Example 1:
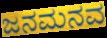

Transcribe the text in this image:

ಜನಮನವ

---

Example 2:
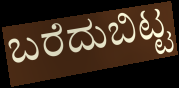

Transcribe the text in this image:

ಬರೆದುಬಿಟ್ಟ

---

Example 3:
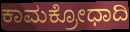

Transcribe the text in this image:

ಕಾಮಕ್ರೋಧಾದಿ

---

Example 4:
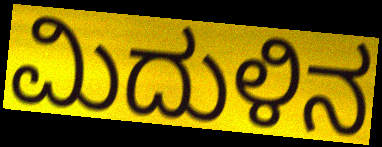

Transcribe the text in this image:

ಮಿದುಳಿನ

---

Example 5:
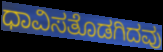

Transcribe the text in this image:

ಧಾವಿಸತೊಡಗಿದವು